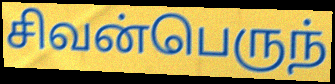
சிவன்பெருந்